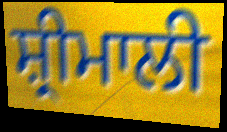
ਸ਼੍ਰੀਮਾਲੀ